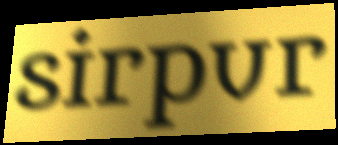
sirpur